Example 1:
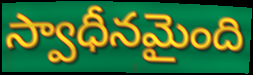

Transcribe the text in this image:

స్వాధీనమైంది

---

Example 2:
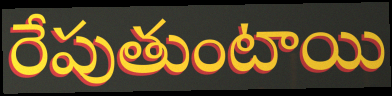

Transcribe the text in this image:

రేపుతుంటాయి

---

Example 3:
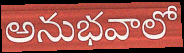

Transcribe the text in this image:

అనుభవాలో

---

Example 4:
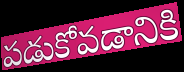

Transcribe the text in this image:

పడుకోవడానికి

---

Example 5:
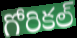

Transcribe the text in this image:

గోరికల్